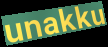
unakku